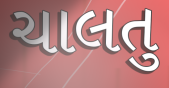
ચાલતુ